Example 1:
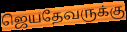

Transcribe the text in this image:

ஜெயதேவருக்கு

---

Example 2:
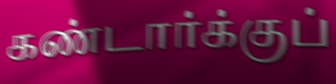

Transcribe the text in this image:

கண்டார்க்குப்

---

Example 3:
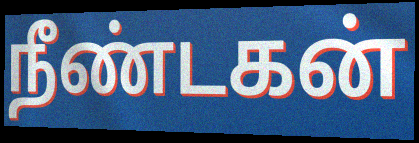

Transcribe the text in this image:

நீண்டகன்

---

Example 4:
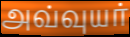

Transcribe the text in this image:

அவ்வுயர்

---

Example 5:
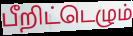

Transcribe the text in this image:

பீறிட்டெழும்